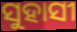
ସୁହାସୀ